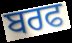
ਬਰਫ